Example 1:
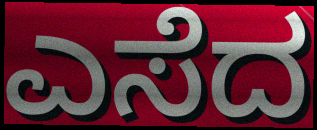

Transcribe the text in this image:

ಎಸೆದ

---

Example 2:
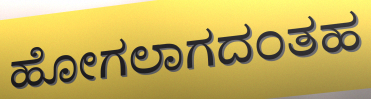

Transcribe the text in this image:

ಹೋಗಲಾಗದಂತಹ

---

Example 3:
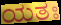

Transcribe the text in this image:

ಯತಃ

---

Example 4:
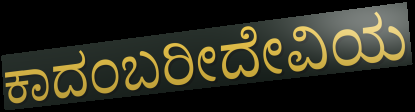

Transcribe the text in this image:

ಕಾದಂಬರೀದೇವಿಯ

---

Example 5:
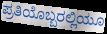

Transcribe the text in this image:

ಪ್ರತಿಯೊಬ್ಬರಲ್ಲಿಯೂ